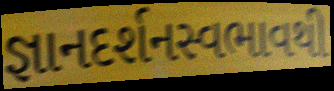
જ્ઞાનદર્શનસ્વભાવથી